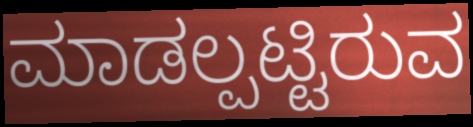
ಮಾಡಲ್ಪಟ್ಟಿರುವ